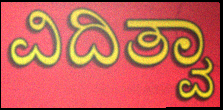
ವಿದಿತ್ವಾ